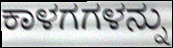
ಕಾಳಗಗಳನ್ನು